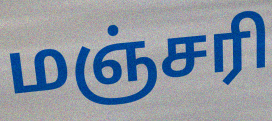
மஞ்சரி